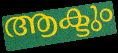
ആക്ടും